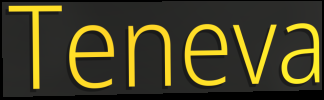
Teneva